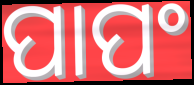
ପାପଂ